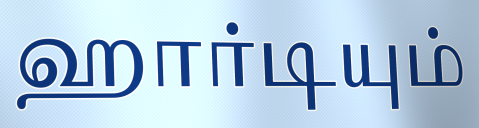
ஹார்டியும்